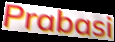
Prabasi